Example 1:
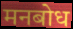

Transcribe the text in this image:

मनबोध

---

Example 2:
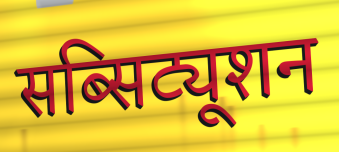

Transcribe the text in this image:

सब्सिट्यूशन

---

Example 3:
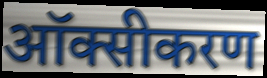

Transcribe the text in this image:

ऑक्सीकरण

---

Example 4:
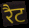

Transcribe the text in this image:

रैट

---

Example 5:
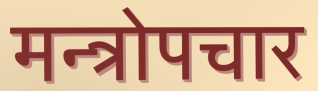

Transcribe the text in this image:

मन्त्रोपचार